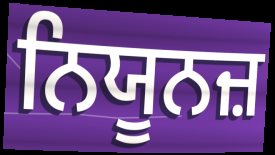
ਨਿਯੂਨਜ਼